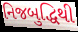
નિજબુદ્ધિથી